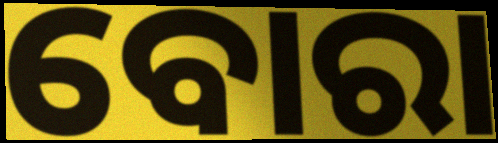
ବୋରା